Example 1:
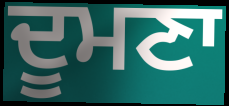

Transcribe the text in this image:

ਦੂਮਣਾ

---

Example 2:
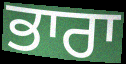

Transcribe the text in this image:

ਭਾਰਾ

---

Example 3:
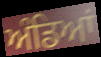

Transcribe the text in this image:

ਅੰਡਿਆਂ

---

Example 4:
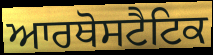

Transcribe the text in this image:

ਆਰਥੋਸਟੈਟਿਕ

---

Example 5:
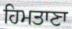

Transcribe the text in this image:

ਹਿਮਤਾਣਾ